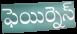
ఫెయిర్నెస్